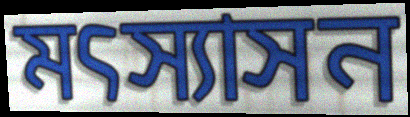
মৎস্যাসন